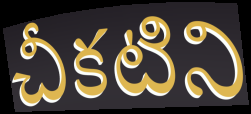
చీకటిని